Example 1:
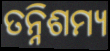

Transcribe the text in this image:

ତନ୍ନିଶମ୍ୟ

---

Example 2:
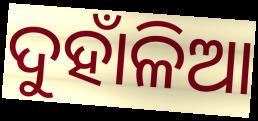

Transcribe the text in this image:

ଦୁହାଁଳିଆ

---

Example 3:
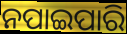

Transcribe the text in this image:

ନପାଇପାରି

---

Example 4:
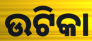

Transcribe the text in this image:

ଉଟିକା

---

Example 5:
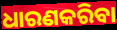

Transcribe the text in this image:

ଧାରଣକରିବା